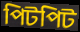
পিটপিট